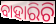
ବାହାରିଚି